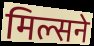
मिल्सने